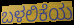
ಬಳಲಿಕೆಯ